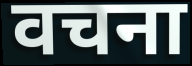
वचना